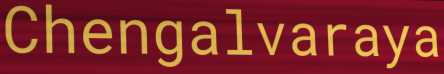
Chengalvaraya